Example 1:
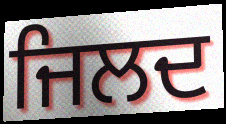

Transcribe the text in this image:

ਜਿਲਦ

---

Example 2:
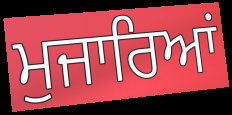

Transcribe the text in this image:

ਮੁਜਾਰਿਆਂ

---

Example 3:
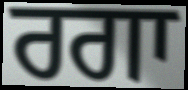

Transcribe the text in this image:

ਰਗਾ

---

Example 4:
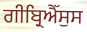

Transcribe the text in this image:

ਗੀਬ੍ਰਿਐੱਸੁਸ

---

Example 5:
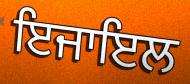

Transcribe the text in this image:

ਇਜਾਇਲ